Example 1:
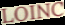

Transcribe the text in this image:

LOINC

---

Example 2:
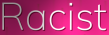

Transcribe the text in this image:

Racist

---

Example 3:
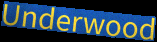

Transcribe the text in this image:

Underwood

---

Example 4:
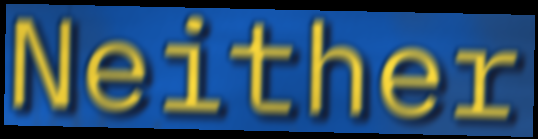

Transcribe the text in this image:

Neither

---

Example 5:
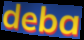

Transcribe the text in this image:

deba